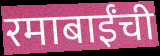
रमाबाईंची